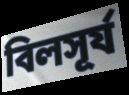
বিলসূর্য